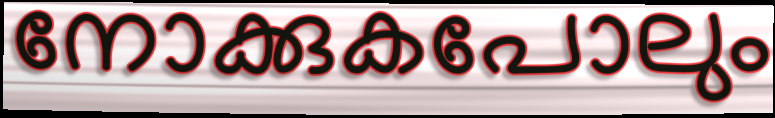
നോക്കുകപോലും